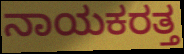
ನಾಯಕರತ್ತ